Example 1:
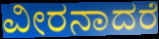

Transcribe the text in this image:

ವೀರನಾದರೆ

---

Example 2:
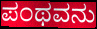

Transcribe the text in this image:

ಪಂಥವನು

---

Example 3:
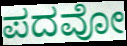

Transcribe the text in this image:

ಪದವೋ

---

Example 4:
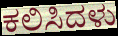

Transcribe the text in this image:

ಕಲಿಸಿದಳು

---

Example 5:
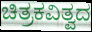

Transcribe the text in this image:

ಚಿತ್ರಕವಿತ್ವದ